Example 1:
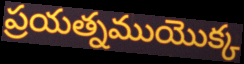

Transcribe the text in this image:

ప్రయత్నముయొక్క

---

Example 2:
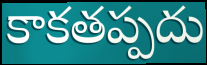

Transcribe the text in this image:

కాకతప్పదు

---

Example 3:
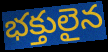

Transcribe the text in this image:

భక్తులైన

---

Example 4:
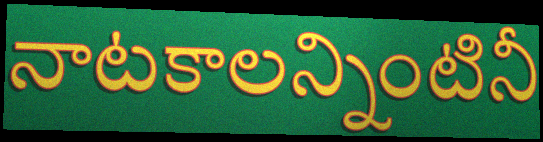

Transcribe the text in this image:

నాటకాలన్నింటినీ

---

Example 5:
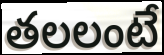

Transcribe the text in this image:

తలలంటే